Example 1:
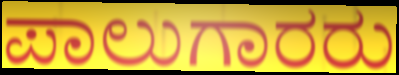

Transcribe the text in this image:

ಪಾಲುಗಾರರು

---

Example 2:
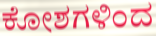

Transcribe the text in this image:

ಕೋಶಗಳಿಂದ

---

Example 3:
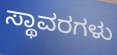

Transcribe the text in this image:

ಸ್ಥಾವರಗಳು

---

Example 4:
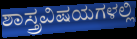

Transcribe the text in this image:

ಶಾಸ್ತ್ರವಿಷಯಗಳಲ್ಲಿ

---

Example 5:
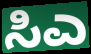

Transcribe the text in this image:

ಸಿಎ